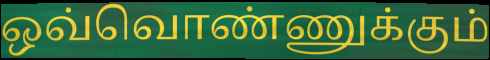
ஒவ்வொண்ணுக்கும்